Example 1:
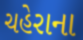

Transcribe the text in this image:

ચહેરાના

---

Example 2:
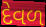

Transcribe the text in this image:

દેવળ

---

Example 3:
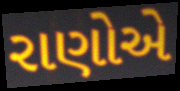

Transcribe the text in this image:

રાણોએ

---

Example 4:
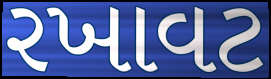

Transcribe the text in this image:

રખાવટ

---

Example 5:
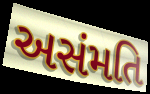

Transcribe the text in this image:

અસંમતિ